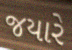
જયારે